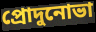
প্রোদুনোভা